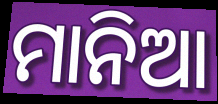
ମାନିଆ